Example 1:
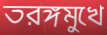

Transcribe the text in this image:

তরঙ্গমুখে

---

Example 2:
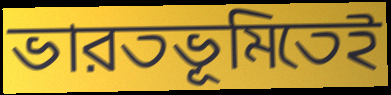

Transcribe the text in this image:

ভারতভূমিতেই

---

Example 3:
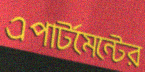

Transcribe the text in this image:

এপার্টমেন্টের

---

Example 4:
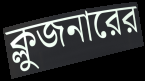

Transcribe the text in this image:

ক্লুজনারের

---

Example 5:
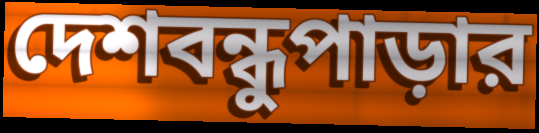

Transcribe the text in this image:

দেশবন্ধুপাড়ার